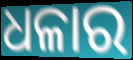
ଧଳାର